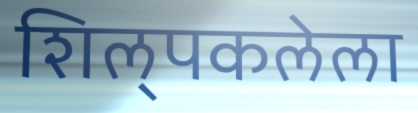
शिल्पकलेला